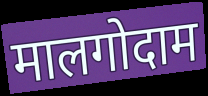
मालगोदाम